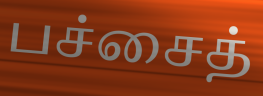
பச்சைத்